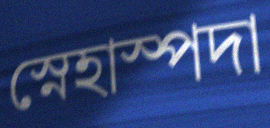
স্নেহাস্পদা